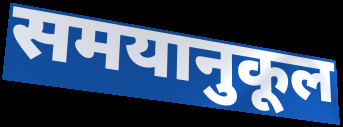
समयानुकूल